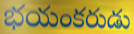
భయంకరుడు